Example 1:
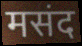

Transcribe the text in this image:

मसंद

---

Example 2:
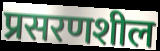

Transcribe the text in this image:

प्रसरणशील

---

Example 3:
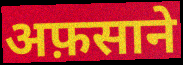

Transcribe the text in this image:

अफ़साने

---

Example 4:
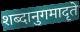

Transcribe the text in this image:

शब्दानुगमादृते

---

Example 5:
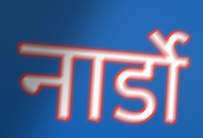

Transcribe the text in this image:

नार्डो